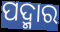
ପଦ୍ମାର